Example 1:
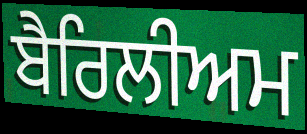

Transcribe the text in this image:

ਬੈਰਿਲੀਅਮ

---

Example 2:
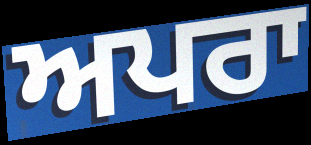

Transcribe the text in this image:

ਅਪਰਾ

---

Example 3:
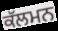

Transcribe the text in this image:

ਕੱਲਮਨ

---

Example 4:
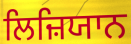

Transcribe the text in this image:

ਲਿਜ਼ਿਯਾਨ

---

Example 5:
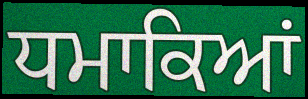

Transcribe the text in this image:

ਧਮਾਕਿਆਂ